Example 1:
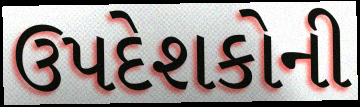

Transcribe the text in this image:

ઉપદેશકોની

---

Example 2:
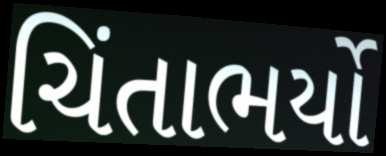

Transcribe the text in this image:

ચિંતાભર્યો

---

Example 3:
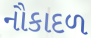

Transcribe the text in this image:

નૌકાદળ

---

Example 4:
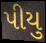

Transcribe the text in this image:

પીયુ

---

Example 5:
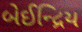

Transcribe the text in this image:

બેઈન્દ્રિય